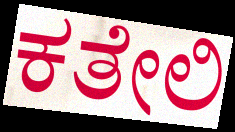
ಕತೇಲಿ